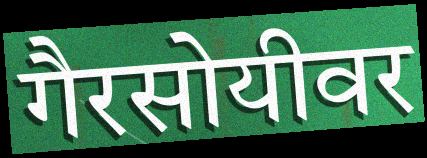
गैरसोयीवर